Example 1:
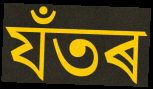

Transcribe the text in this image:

যঁতৰ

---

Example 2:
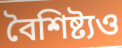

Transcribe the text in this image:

বৈশিষ্ট্যও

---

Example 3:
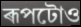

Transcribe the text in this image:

ৰূপটোও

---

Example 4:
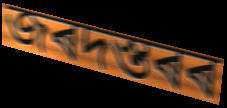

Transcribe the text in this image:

জৰদস্তৰৰ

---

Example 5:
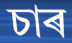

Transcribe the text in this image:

চাৰ